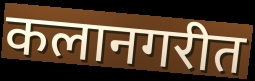
कलानगरीत